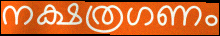
നക്ഷത്രഗണം